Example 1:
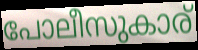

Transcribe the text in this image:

പോലീസുകാര്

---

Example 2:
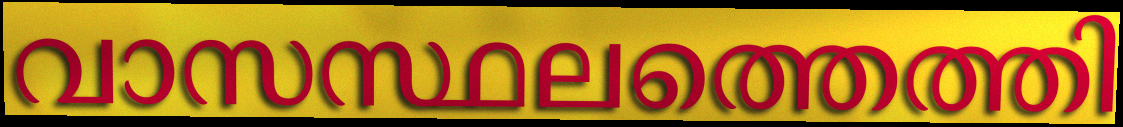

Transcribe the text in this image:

വാസസ്ഥലത്തെത്തി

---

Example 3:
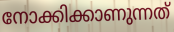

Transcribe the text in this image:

നോക്കിക്കാണുന്നത്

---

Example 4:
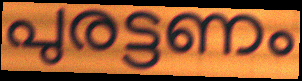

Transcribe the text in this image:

പുരട്ടണം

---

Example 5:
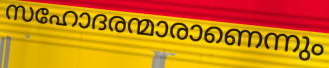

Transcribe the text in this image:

സഹോദരന്മാരാണെന്നും